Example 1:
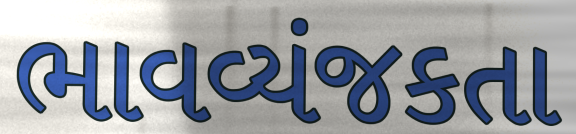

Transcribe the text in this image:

ભાવવ્યંજકતા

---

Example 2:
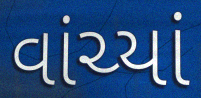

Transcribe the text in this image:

વાંચ્યાં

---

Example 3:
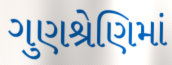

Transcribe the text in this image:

ગુણશ્રેણિમાં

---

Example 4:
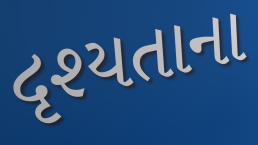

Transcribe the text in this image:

દૃશ્યતાના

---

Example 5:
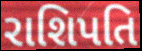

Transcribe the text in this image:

રાશિપતિ